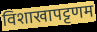
विशाखापट्टणम